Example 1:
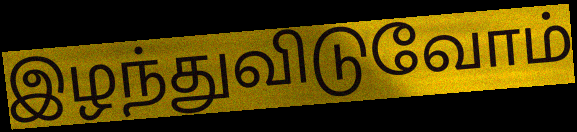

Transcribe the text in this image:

இழந்துவிடுவோம்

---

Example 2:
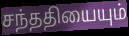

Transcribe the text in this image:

சந்ததியையும்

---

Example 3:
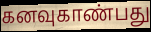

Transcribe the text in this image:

கனவுகாண்பது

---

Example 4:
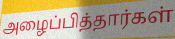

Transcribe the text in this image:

அழைப்பித்தார்கள்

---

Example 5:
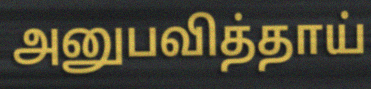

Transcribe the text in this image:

அனுபவித்தாய்